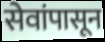
सेवांपासून